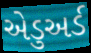
એડુઅર્ડ